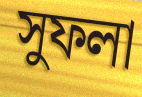
সুফলা